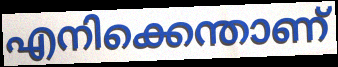
എനിക്കെന്താണ്